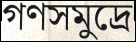
গণসমুদ্রে